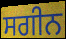
ਸਗੀਨ